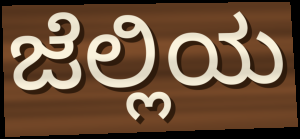
ಜೆಲ್ಲಿಯ